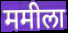
ममीला